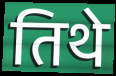
तिथे